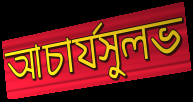
আচার্যসুলভ